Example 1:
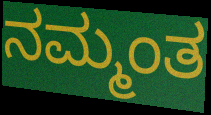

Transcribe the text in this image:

ನಮ್ಮಂತ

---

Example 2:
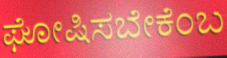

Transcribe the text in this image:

ಘೋಷಿಸಬೇಕೆಂಬ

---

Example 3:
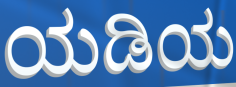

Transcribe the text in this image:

ಯಡಿಯ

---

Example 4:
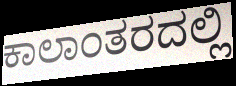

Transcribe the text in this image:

ಕಾಲಾಂತರದಲ್ಲಿ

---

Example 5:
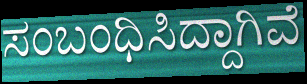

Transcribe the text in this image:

ಸಂಬಂಧಿಸಿದ್ದಾಗಿವೆ